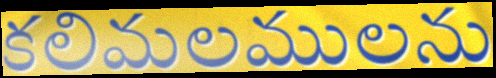
కలిమలములను